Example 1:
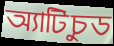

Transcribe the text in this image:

অ্যাটিচুড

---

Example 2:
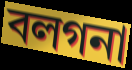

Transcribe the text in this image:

বলগনা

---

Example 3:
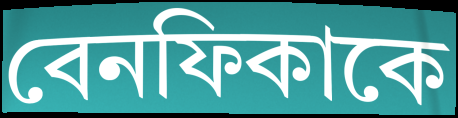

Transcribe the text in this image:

বেনফিকাকে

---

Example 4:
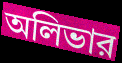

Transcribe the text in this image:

অলিভার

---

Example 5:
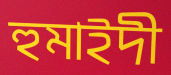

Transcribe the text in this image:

হুমাইদী